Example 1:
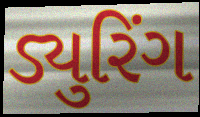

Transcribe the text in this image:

ડ્યુરિંગ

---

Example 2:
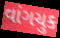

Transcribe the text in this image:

વાંગચુક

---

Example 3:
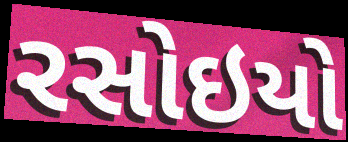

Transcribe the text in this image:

રસોઇયો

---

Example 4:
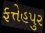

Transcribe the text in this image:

ફત્તેહપુર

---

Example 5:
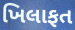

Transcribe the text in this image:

ખિલાફત